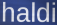
haldi